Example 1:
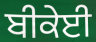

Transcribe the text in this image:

ਬੀਕੇਈ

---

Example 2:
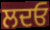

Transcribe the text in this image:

ਲਦਓ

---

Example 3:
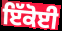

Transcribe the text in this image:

ਇੱਕੋਈ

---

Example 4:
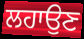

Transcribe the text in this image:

ਲਹਾਉਣ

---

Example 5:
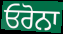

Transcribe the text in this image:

ਓਰੋਨਾ